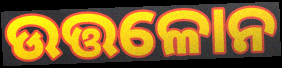
ଉତ୍ତଳୋନ